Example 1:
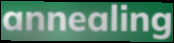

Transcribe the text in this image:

annealing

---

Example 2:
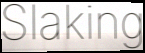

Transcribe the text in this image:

Slaking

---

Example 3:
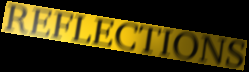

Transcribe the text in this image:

REFLECTIONS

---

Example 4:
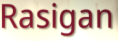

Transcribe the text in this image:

Rasigan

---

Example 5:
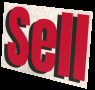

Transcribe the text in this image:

Sell